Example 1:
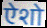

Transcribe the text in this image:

ऐशो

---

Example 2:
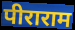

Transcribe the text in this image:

पीराराम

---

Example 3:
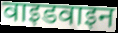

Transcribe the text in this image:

वाइडवाइन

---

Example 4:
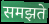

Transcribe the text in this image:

समझते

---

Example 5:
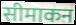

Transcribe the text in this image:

सीमाकन